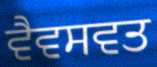
ਵੈਵਸਵਤ